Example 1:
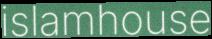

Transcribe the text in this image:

islamhouse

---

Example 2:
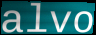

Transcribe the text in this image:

alvo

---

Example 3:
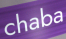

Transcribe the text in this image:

chaba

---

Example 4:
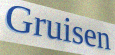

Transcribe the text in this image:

Gruisen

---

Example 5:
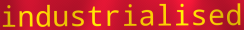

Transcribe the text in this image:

industrialised